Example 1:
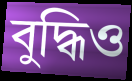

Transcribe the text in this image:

বুদ্ধিও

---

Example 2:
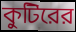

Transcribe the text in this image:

কুটিরের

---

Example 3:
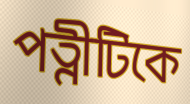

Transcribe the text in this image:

পত্নীটিকে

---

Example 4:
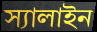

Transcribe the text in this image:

স্যালাইন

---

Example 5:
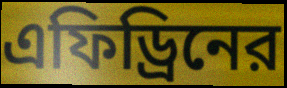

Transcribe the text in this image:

এফিড্রিনের